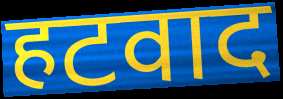
हटवाद